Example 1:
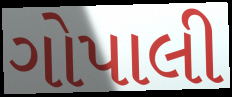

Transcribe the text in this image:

ગોપાલી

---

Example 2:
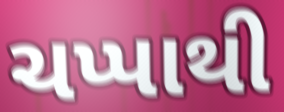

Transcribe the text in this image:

ચપ્પાથી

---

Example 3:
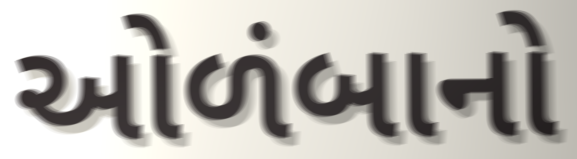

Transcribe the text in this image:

ઓળંબાનો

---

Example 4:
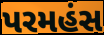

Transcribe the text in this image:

પરમહંસ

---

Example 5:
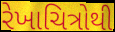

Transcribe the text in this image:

રેખાચિત્રોથી